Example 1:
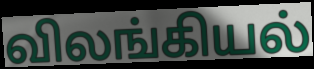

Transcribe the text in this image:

விலங்கியல்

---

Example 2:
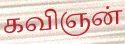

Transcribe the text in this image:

கவிஞன்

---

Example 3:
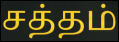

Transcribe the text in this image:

சத்தம்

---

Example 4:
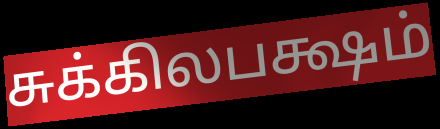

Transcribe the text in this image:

சுக்கிலபக்ஷம்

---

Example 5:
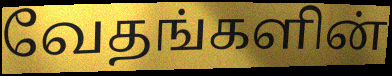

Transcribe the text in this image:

வேதங்களின்